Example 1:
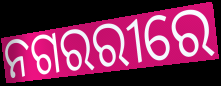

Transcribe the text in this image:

ନଗରରୀରେ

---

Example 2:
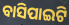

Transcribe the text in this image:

ବାସିପାଇଟି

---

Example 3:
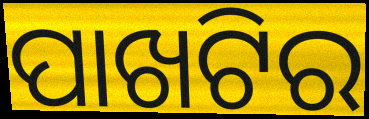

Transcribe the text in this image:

ପାଖଟିର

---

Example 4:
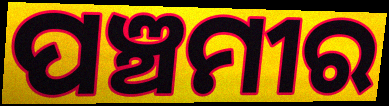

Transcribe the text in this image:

ପଞ୍ଚମୀର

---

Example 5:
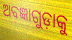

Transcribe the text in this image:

ଅବଜ୍ଞାଗୁଡ଼ାକୁ